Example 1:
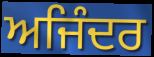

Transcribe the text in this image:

ਅਜਿੰਦਰ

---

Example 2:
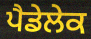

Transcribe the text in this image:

ਪੈਡੇਲੇਕ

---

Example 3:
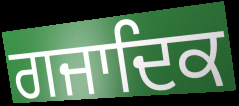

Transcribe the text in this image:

ਗਜਾਦਿਕ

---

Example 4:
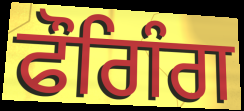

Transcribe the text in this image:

ਫੌਗਿੰਗ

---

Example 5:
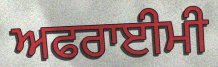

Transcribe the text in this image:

ਅਫਰਾਈਮੀ